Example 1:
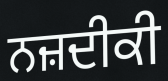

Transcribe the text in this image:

ਨਜ਼ਦੀਕੀ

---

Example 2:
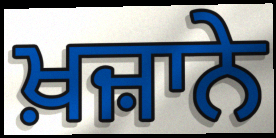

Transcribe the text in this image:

ਖ਼ਜ਼ਾਨੇ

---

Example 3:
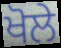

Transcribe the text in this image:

ਖੋਲੇ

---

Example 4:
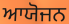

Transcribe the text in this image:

ਆਯੋਜਨ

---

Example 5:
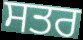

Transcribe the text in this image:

ਸਤਰ